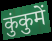
कुंकुमें